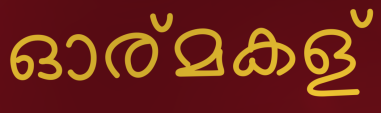
ഓര്മകള്